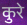
कुरे